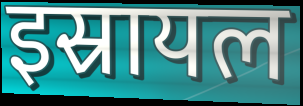
इस्रायल